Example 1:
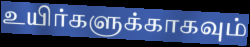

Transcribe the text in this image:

உயிர்களுக்காகவும்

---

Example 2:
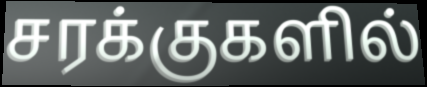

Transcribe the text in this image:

சரக்குகளில்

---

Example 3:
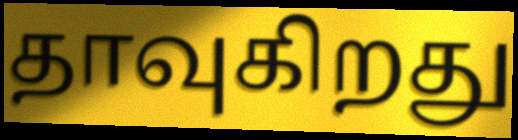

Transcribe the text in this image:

தாவுகிறது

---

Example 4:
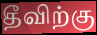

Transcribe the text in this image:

தீவிற்கு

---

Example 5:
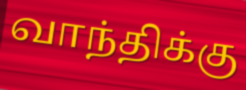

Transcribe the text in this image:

வாந்திக்கு